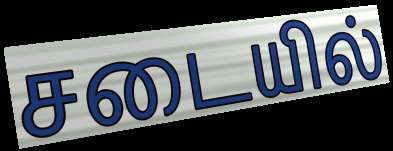
சடையில்